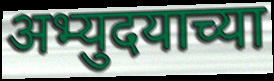
अभ्युदयाच्या